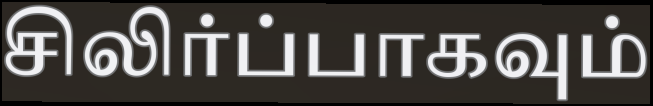
சிலிர்ப்பாகவும்